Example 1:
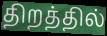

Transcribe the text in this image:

திறத்தில்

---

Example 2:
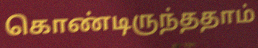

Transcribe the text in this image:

கொண்டிருந்ததாம்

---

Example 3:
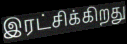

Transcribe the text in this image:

இரட்சிக்கிறது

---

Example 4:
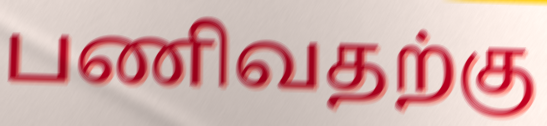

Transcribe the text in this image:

பணிவதற்கு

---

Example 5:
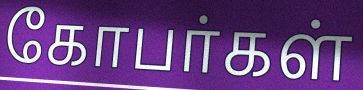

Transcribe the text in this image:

கோபர்கள்